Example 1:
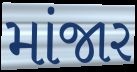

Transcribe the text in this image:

માંજાર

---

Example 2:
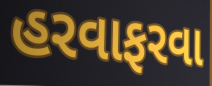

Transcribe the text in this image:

હરવાફરવા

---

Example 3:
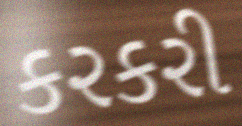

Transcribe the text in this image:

કરકરી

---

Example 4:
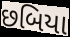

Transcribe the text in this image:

છબિયા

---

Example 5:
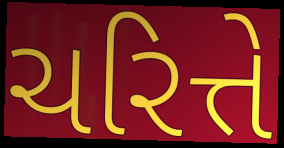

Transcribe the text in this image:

ચરિત્તે